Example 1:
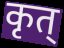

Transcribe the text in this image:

कृत्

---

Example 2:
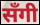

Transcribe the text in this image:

सँगी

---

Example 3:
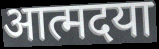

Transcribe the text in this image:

आत्मदया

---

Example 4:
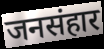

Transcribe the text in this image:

जनसंहार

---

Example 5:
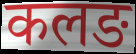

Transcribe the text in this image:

कलङ